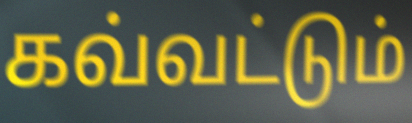
கவ்வட்டும்